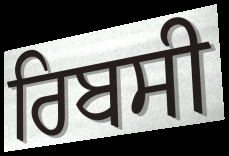
ਰਿਬਸੀ